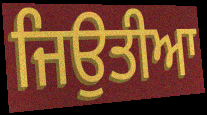
ਜਿਉਤੀਆ